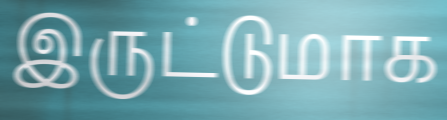
இருட்டுமாக